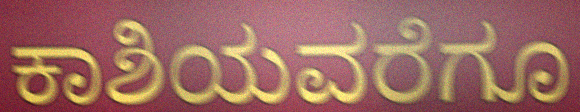
ಕಾಶಿಯವರೆಗೂ